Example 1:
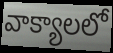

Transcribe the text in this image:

వాక్యాలలో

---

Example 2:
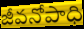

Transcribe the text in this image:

జీవనోపాధి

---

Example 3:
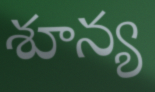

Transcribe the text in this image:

శూన్య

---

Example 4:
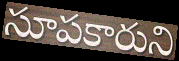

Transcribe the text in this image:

సూపకారుని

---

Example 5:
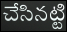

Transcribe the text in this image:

చేసినట్టి